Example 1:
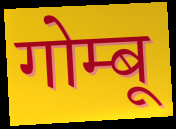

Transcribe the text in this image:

गोम्बू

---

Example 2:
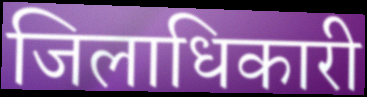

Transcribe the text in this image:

जिलाधिकारी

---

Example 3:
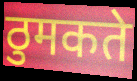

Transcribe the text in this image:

ठुमकते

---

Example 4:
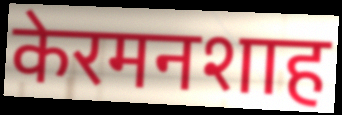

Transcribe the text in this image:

केरमनशाह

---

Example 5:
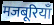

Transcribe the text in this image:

मजबूरियाँ